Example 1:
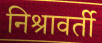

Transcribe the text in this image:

निश्रावर्ती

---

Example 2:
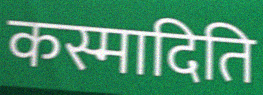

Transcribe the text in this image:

कस्मादिति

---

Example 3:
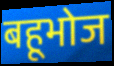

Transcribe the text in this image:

बहूभोज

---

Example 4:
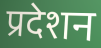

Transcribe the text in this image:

प्रदेशन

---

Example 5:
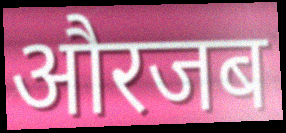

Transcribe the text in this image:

औरजब